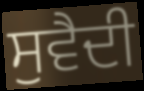
ਸੁਵੈਦੀ